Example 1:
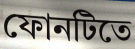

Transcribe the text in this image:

ফোনটিতে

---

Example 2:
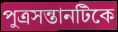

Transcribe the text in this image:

পুত্রসন্তানটিকে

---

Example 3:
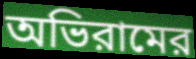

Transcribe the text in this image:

অভিরামের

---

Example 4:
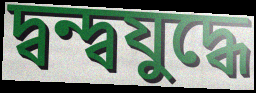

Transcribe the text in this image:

দ্বন্দ্বযুদ্ধে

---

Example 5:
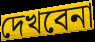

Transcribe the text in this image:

দেখবেনা